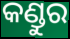
କଣ୍ଡୁର